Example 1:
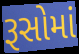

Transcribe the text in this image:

રૂસોમાં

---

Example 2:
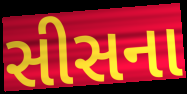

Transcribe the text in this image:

સીસના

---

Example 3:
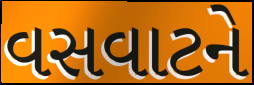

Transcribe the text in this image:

વસવાટને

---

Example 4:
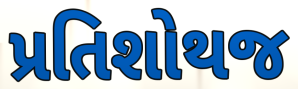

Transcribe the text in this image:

પ્રતિશોથજ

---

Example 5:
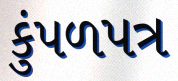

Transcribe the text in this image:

કુંપળપત્ર